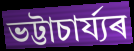
ভট্টাচাৰ্য্যৰ